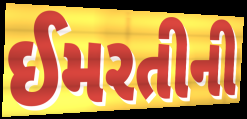
ઈમરતીની